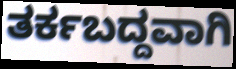
ತರ್ಕಬದ್ದವಾಗಿ